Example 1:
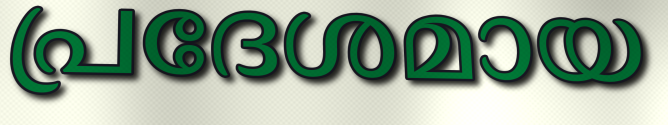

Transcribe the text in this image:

പ്രദേശമായ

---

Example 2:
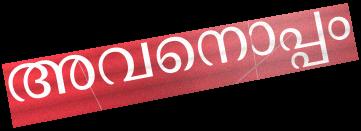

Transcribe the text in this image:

അവനൊപ്പം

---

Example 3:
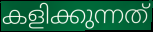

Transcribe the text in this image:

കളിക്കുന്നത്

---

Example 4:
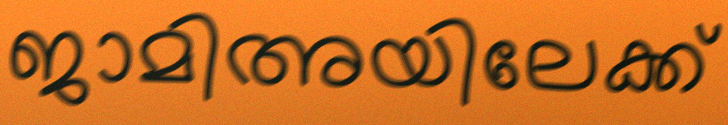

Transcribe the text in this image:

ജാമിഅയിലേക്ക്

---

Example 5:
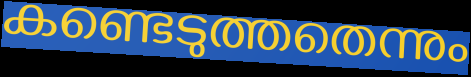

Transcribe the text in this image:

കണ്ടെടുത്തതെന്നും